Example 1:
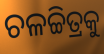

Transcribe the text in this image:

ଚଳଚ୍ଚିତ୍ରକୁ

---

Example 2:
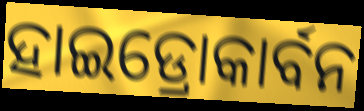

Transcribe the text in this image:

ହାଇଡ୍ରୋକାର୍ବନ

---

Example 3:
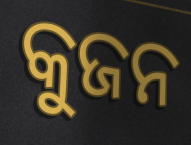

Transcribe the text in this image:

କୁଜନ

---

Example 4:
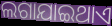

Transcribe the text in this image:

ଲଗାଯାଇଥାଏ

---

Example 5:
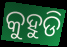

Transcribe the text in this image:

କୁହୁଡି